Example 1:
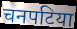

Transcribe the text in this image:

चनपटिया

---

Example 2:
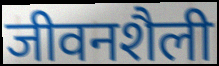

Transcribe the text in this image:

जीवनशैली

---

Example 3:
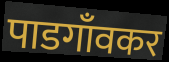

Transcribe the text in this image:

पाडगाँवकर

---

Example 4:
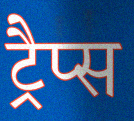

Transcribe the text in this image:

ट्रैप्स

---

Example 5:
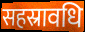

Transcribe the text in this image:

सहस्रावधि